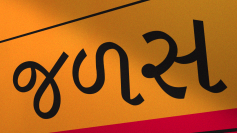
જળસ